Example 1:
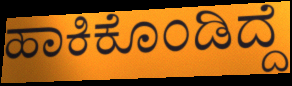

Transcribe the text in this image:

ಹಾಕಿಕೊಂಡಿದ್ದೆ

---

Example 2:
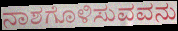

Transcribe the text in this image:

ನಾಶಗೊಳಿಸುವವನು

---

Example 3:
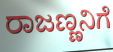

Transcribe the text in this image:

ರಾಜಣ್ಣನಿಗೆ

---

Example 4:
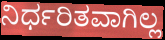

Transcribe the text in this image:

ನಿರ್ಧರಿತವಾಗಿಲ್ಲ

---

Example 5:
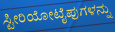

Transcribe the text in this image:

ಸ್ಟೀರಿಯೋಟೈಪುಗಳನ್ನು